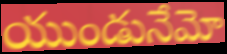
యుండునేమో